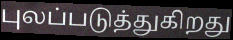
புலப்படுத்துகிறது